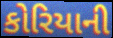
કોરિયાની